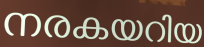
നരകയറിയ